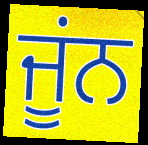
ਜੂਂਨ